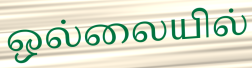
ஒல்லையில்